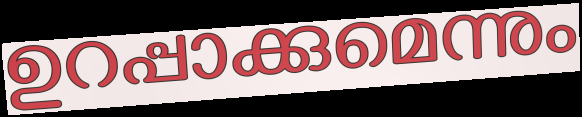
ഉറപ്പാക്കുമെന്നും